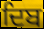
ਦਿਬ